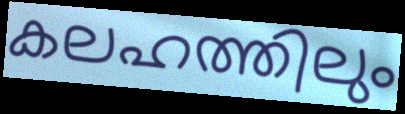
കലഹത്തിലും